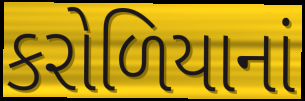
કરોળિયાનાં